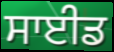
ਸਾਈਡ